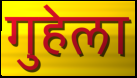
गुहेला